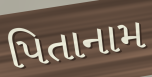
પિતાનામ